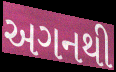
અગનથી